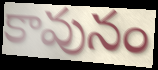
కావునం